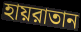
হায়রাতান